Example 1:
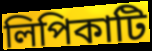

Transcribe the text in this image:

লিপিকাটি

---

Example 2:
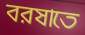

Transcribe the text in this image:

বরষাতে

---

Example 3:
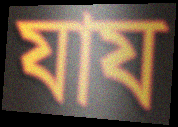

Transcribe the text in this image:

যায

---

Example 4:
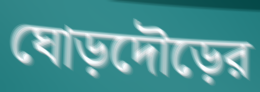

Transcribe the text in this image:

ঘোড়দৌড়ের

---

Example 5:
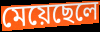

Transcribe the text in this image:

মেয়েছেলে